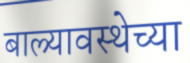
बाल्यावस्थेच्या